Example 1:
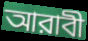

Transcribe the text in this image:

আরাবী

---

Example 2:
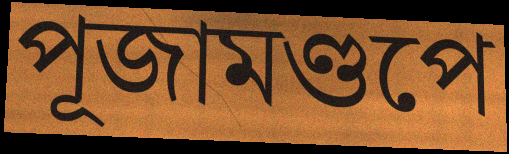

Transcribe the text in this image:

পূজামণ্ডপে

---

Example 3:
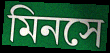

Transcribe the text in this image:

মিনসে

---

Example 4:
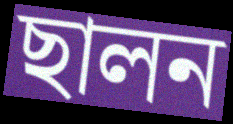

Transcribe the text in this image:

ছালন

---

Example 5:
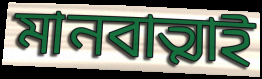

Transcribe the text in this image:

মানবাত্মাই